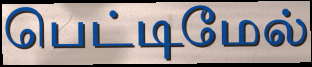
பெட்டிமேல்